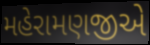
મહેરામણજીએ